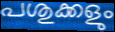
പശുക്കളും